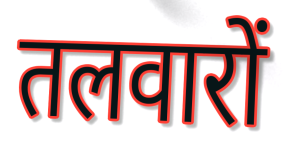
तलवारों